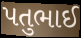
પતુભાઈ